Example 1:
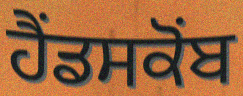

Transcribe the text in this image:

ਹੈਂਡਸਕੋਂਬ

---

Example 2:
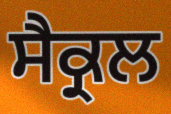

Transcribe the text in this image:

ਸੈਕ੍ਰਲ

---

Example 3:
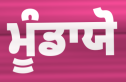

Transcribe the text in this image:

ਮੂੰਡਾਯੋ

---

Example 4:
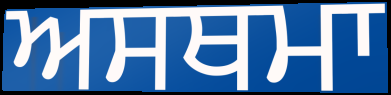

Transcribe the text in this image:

ਅਸਥਮਾ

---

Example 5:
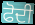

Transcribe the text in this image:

ਫੋਦੀ